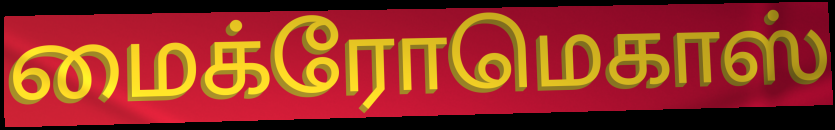
மைக்ரோமெகாஸ்